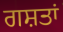
ਗਸ਼ਤਾਂ